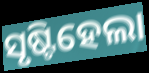
ସୃଷ୍ଟିହେଲା